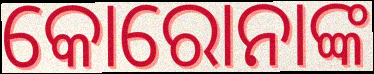
କୋରୋନାଙ୍କ